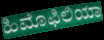
ಹಿಮೊಫಿಲಿಯಾ